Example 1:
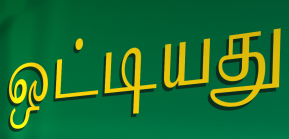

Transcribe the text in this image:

ஒட்டியது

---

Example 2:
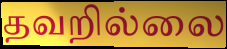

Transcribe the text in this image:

தவறில்லை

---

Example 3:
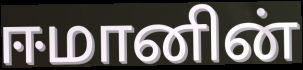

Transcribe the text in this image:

ஈமானின்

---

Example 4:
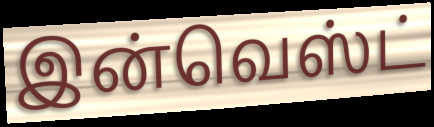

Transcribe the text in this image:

இன்வெஸ்ட்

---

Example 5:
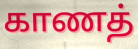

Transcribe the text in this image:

காணத்